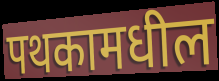
पथकामधील